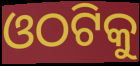
ଓଠଟିକୁ